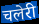
चलेरी